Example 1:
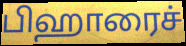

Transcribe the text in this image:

பிஹாரைச்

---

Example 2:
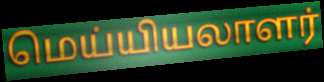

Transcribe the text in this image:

மெய்யியலாளர்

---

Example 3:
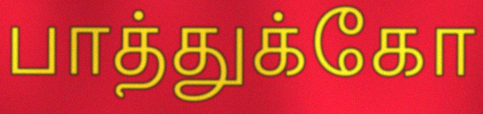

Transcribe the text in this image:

பாத்துக்கோ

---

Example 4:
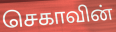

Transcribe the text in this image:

செகாவின்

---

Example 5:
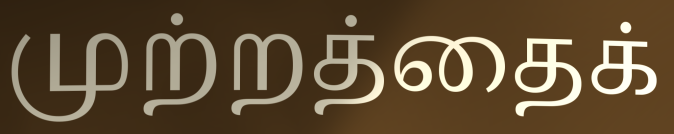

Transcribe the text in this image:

முற்றத்தைக்